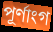
পূৰ্ণাংগ